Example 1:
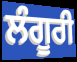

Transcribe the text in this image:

ਲੰਗੂਰੀ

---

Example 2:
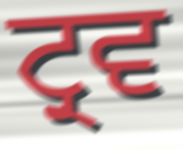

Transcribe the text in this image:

ਟ੍ਰਵ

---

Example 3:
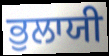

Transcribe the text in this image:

ਭੁਲਾਯੀ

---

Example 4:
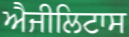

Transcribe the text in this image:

ਐਜੀਲਿਟਾਸ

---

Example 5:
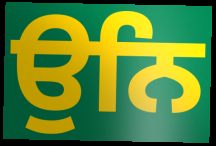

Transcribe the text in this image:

ਉਨਿ